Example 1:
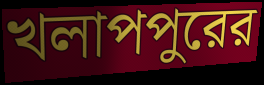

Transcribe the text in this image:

খলাপপুরের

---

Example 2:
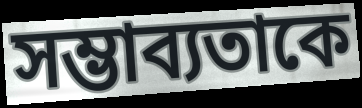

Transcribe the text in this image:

সম্ভাব্যতাকে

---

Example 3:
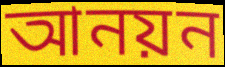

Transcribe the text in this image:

আনয়ন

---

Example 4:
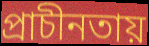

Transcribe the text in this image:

প্রাচীনতায়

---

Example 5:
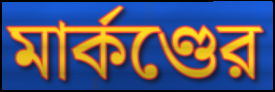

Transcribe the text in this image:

মার্কণ্ডের